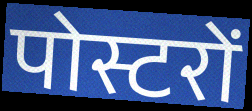
पोस्टरों